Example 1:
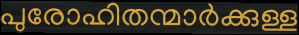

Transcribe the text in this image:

പുരോഹിതന്മാർക്കുള്ള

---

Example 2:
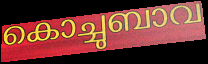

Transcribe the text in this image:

കൊച്ചുബാവ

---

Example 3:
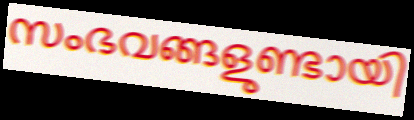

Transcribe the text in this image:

സംഭവങ്ങളുണ്ടായി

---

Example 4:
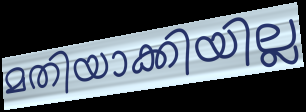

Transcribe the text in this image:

മതിയാക്കിയില്ല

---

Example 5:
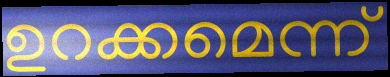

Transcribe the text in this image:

ഉറക്കമെന്ന്